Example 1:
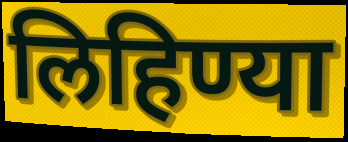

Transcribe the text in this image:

लिहिण्या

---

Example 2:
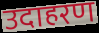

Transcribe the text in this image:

उदाहरण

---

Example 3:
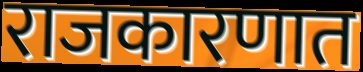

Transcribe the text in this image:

राजकारणात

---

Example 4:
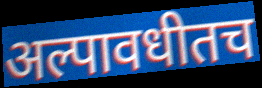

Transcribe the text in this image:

अल्पावधीतच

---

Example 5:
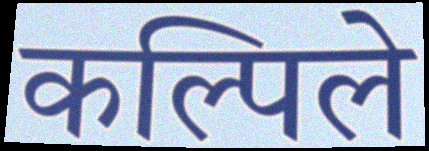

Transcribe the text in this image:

कल्पिले